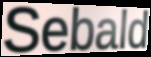
Sebald